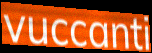
vuccanti